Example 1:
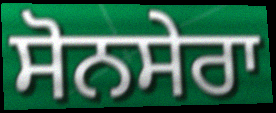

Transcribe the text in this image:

ਸੋਨਸੇਰਾ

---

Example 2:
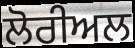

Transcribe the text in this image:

ਲੋਰੀਅਲ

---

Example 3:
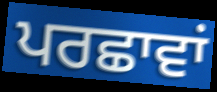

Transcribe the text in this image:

ਪਰਛਾਵਾਂ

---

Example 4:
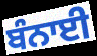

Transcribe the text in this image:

ਬੰਨਾਈ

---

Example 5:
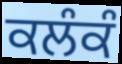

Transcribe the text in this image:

ਕਲੰਕੰ